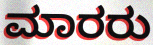
ಮಾರರು